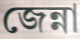
জেন্না